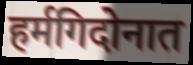
हर्मगिदोनात